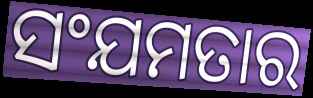
ସଂଯମତାର